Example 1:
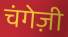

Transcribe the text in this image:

चंगेज़ी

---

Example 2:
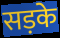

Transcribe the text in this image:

सड़के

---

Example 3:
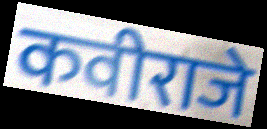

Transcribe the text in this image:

कवीराजे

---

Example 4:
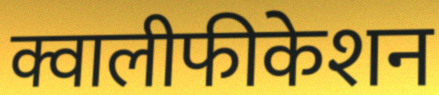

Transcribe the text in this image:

क्वालीफीकेशन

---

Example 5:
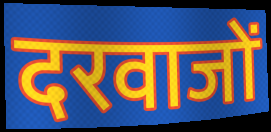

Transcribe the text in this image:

दरवाजों